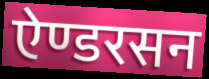
ऐण्डरसन